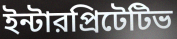
ইন্টারপ্রিটেটিভ